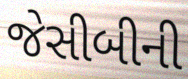
જેસીબીની